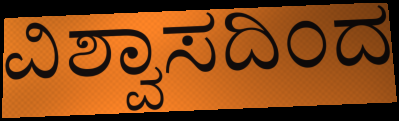
ವಿಶ್ವಾಸದಿಂದ